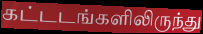
கட்டடங்களிலிருந்து